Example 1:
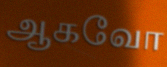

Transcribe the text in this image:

ஆகவோ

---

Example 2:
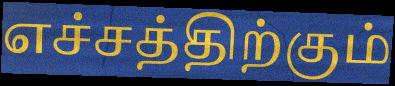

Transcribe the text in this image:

எச்சத்திற்கும்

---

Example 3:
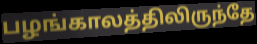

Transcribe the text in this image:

பழங்காலத்திலிருந்தே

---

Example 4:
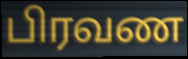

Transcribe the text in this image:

பிரவண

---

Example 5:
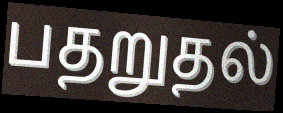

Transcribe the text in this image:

பதறுதல்